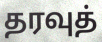
தரவுத்